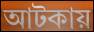
আটকায়